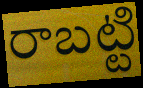
రాబట్టి